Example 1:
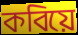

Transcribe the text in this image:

কবিয়ে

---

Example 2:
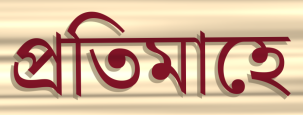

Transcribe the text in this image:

প্ৰতিমাহে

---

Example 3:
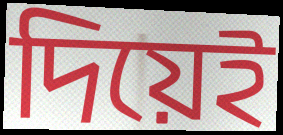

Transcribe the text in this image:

দিয়েই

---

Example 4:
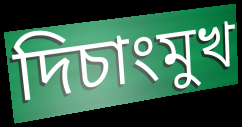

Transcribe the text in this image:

দিচাংমুখ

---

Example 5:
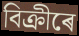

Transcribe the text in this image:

বিক্ৰীৰে